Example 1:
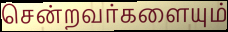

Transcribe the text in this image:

சென்றவர்களையும்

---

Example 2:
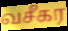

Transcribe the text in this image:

வசீகர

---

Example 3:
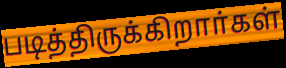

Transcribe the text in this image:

படித்திருக்கிறார்கள்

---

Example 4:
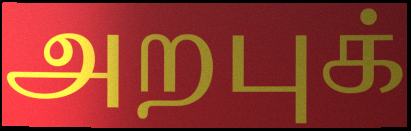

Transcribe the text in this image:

அறபுக்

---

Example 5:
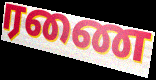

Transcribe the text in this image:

ரணை